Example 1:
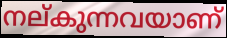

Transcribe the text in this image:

നല്കുന്നവയാണ്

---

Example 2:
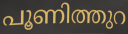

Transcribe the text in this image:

പൂണിത്തുറ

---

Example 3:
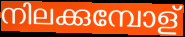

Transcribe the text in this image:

നിലക്കുമ്പോള്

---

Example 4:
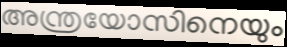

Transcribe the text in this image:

അന്ത്രയോസിനെയും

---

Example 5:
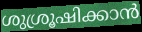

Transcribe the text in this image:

ശുശ്രൂഷിക്കാൻ